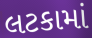
લટકામાં